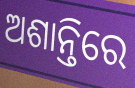
ଅଶାନ୍ତିରେ